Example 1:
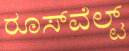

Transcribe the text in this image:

ರೂಸ್‌ವೆಲ್ಟ್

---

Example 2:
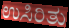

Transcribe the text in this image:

ಉಸಿರಿತು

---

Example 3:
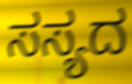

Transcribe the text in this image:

ಸಸ್ಯದ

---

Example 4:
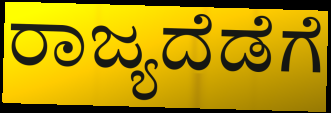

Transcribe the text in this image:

ರಾಜ್ಯದೆಡೆಗೆ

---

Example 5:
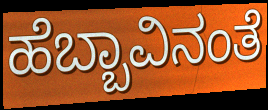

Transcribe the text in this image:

ಹೆಬ್ಬಾವಿನಂತೆ